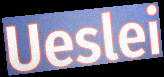
Ueslei